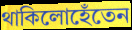
থাকিলোহেঁতেন